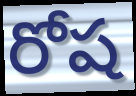
రోష